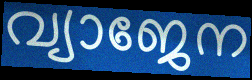
വ്യാജേന